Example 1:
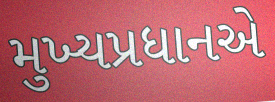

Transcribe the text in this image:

મુખ્યપ્રધાનએ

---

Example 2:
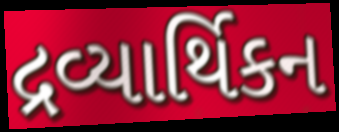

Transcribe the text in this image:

દ્રવ્યાર્થિકન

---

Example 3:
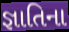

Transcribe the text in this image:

જ્ઞાતિના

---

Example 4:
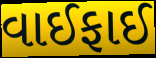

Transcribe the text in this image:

વાઈફાઈ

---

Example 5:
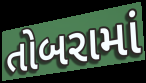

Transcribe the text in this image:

તોબરામાં